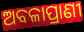
ଅବଳାପ୍ରାଣୀ